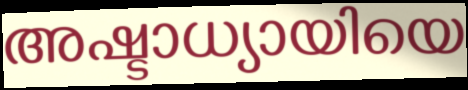
അഷ്ടാധ്യായിയെ